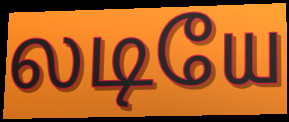
லடியே